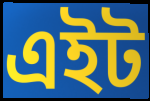
এইট